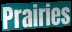
Prairies